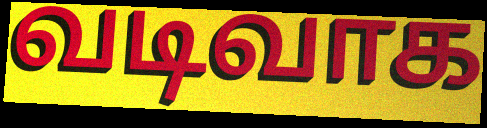
வடிவாக